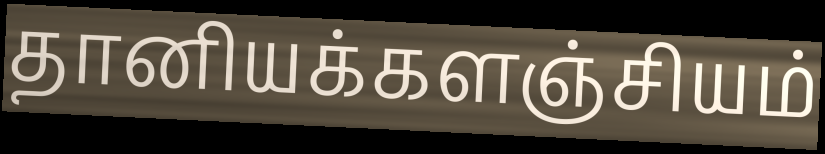
தானியக்களஞ்சியம்